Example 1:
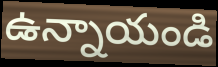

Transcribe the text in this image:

ఉన్నాయండి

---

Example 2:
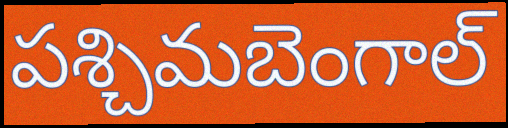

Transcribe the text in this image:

పశ్చిమబెంగాల్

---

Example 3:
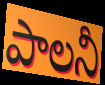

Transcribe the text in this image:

పాలనీ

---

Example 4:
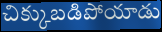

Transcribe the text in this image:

చిక్కుబడిపోయాడు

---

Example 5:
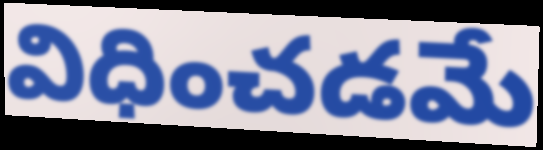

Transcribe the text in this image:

విధించడమే